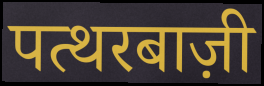
पत्थरबाज़ी